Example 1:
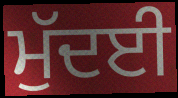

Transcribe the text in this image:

ਮੁੱਦਈ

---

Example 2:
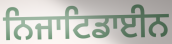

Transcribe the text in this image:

ਨਿਜਾਟਿਡਾਈਨ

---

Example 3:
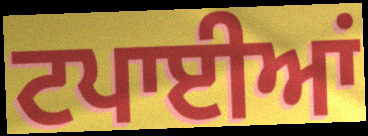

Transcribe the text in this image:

ਟਪਾਈਆਂ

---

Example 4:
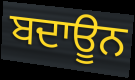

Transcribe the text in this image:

ਬਦਾਊਨ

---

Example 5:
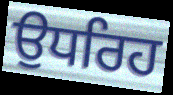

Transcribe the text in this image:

ਉਧਰਿਹ